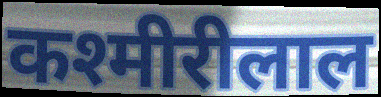
कश्मीरीलाल